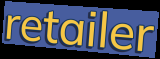
retailer